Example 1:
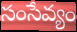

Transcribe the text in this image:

సంసేవ్యం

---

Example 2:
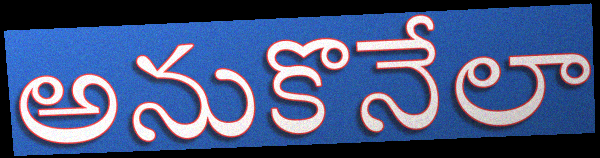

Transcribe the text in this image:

అనుకొనేలా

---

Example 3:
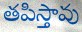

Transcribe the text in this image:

తపిస్తావు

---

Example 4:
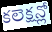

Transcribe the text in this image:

కలెక్షన్లో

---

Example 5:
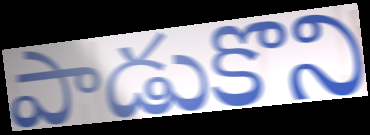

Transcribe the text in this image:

పాడుకొని